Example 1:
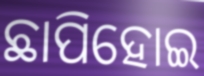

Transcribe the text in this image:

ଛାପିହୋଇ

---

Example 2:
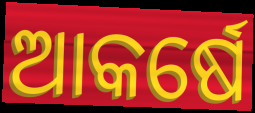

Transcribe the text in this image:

ଆକର୍ଷେ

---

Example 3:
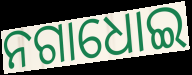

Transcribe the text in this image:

ନଗାଧୋଇ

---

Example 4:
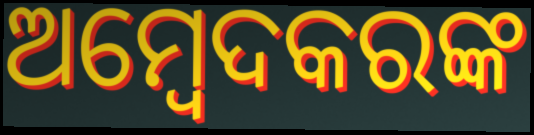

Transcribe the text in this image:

ଅମ୍ବେଦକରଙ୍କ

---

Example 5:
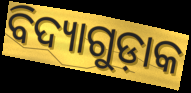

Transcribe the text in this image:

ବିଦ୍ୟାଗୁଡ଼ାକ